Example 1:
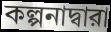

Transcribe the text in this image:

কল্পনাদ্বারা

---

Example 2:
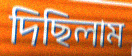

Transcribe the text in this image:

দিছিলাম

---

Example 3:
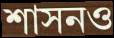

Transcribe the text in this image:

শাসনও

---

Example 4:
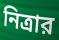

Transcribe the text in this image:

নিত্রার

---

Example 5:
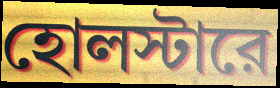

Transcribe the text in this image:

হোলস্টারে